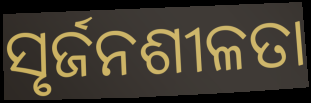
ସୃର୍ଜନଶୀଳତା